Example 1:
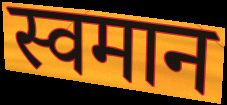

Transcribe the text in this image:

स्वमान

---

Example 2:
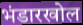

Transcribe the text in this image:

भंडारखोल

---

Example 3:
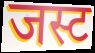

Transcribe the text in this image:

जस्ट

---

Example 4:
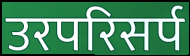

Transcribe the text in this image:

उरपरिसर्प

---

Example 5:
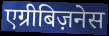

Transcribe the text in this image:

एग्रीबिज़नेस